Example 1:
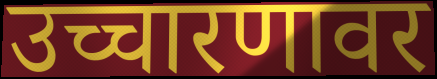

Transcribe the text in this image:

उच्चारणावर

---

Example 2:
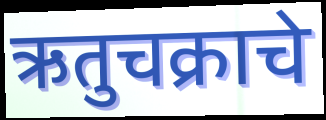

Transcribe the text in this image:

ऋतुचक्राचे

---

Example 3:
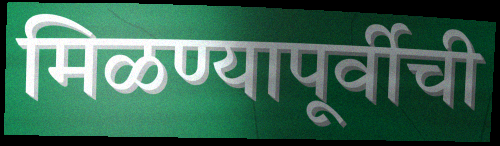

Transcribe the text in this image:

मिळण्यापूर्वीची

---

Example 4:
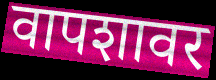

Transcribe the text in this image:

वापशावर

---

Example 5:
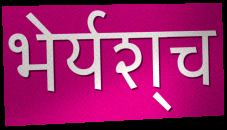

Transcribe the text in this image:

भेर्यश्च